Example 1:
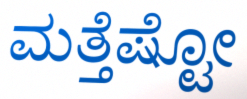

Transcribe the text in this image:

ಮತ್ತೆಷ್ಟೋ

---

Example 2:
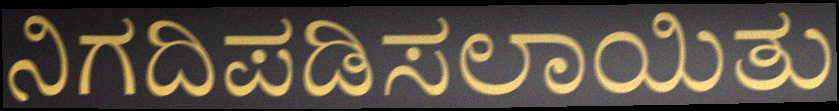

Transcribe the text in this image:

ನಿಗದಿಪಡಿಸಲಾಯಿತು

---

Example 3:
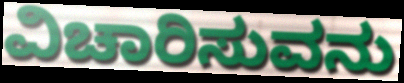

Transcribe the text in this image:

ವಿಚಾರಿಸುವನು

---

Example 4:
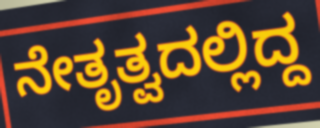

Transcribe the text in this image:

ನೇತೃತ್ವದಲ್ಲಿದ್ದ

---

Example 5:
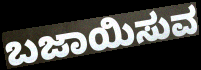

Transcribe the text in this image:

ಬಜಾಯಿಸುವ